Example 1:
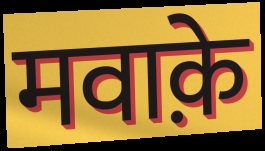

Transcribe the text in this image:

मवाक़े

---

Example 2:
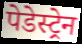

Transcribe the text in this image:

पेडेस्ट्रेन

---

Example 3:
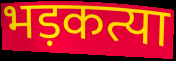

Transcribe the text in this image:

भड़कत्या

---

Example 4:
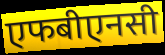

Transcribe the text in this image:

एफबीएनसी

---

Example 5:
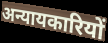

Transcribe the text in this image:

अन्यायकारियों